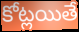
కోట్లయితే